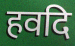
हवदि